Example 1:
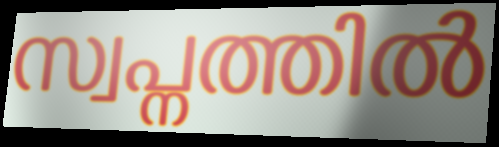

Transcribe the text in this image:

സ്വപ്നത്തിൽ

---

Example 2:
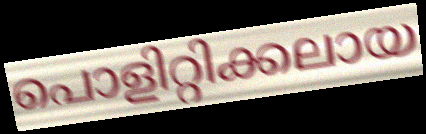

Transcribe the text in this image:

പൊളിറ്റിക്കലായ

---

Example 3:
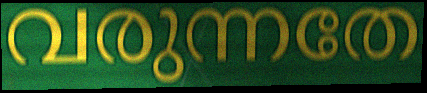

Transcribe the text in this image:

വരുന്നതേ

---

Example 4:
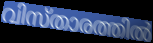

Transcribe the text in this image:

വിസ്താരത്തിൽ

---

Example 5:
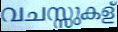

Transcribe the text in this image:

വചസ്സുകള്